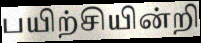
பயிற்சியின்றி